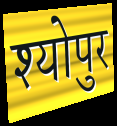
श्योपुर